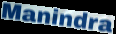
Manindra